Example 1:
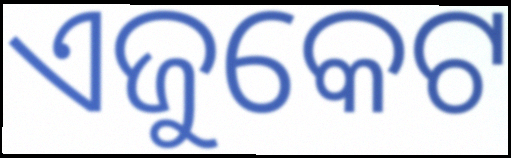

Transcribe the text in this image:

ଏଜୁକେଟ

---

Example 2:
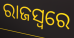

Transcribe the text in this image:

ରାଜସ୍ବରେ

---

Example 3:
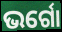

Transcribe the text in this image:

ଭର୍ଗୋ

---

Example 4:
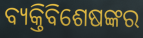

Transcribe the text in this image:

ବ୍ୟକ୍ତିବିଶେଷଙ୍କର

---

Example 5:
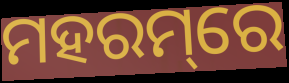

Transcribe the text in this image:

ମହରମ୍‌ରେ